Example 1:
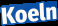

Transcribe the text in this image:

Koeln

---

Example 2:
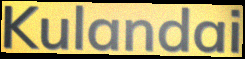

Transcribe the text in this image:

Kulandai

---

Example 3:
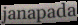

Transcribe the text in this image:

janapada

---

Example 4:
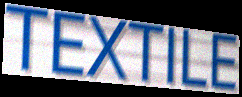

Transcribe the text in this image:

TEXTILE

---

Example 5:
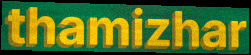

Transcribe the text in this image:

thamizhar